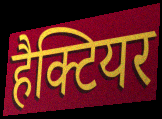
हैक्टियर